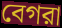
বেগরা